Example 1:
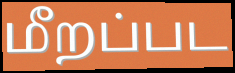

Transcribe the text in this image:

மீறப்பட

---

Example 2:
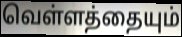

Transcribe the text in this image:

வெள்ளத்தையும்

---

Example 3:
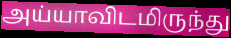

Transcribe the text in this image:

அய்யாவிடமிருந்து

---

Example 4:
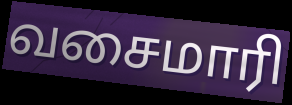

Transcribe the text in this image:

வசைமாரி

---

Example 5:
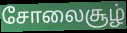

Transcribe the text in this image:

சோலைசூழ்